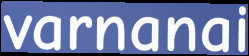
varnanai